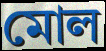
মোল